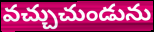
వచ్చుచుండును